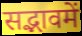
सद्भावमें